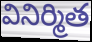
వినిర్మిత